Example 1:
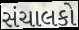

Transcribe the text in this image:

સંચાલકો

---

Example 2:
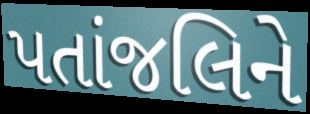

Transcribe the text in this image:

પતાંજલિને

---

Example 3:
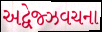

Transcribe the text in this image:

અદ્વેજ્ઝવચના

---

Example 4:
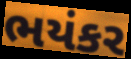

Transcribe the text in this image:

ભયંકર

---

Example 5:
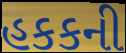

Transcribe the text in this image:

હકકની